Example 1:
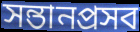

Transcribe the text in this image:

সন্তানপ্রসব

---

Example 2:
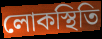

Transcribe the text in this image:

লোকস্থিতি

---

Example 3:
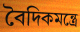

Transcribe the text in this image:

বৈদিকমন্ত্রে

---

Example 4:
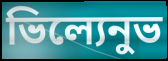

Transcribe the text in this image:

ভিল্যেনুভ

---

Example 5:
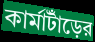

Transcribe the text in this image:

কার্মাটাঁড়ের